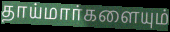
தாய்மார்களையும்